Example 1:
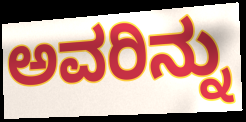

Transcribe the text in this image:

ಅವರಿನ್ನು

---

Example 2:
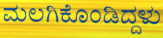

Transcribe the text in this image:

ಮಲಗಿಕೊಂಡಿದ್ದಳು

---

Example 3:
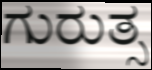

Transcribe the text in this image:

ಗುರುತ್ಸ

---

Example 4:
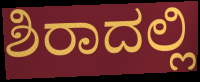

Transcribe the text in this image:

ಶಿರಾದಲ್ಲಿ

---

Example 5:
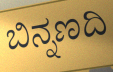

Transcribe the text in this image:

ಬಿನ್ನಣದಿ